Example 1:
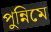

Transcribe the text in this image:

পুন্নিমে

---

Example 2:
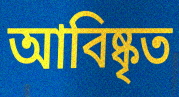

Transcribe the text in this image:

আবিষ্কৃত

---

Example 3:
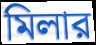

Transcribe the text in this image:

মিলার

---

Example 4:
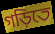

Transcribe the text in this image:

গড়িতে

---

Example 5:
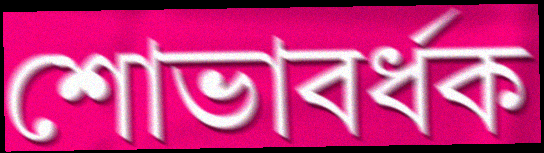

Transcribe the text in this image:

শোভাবর্ধক